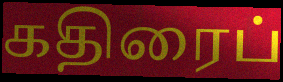
கதிரைப்